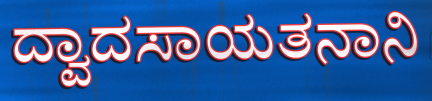
ದ್ವಾದಸಾಯತನಾನಿ